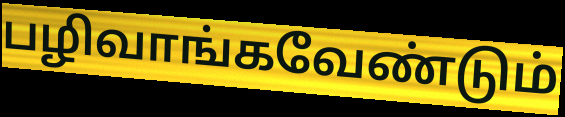
பழிவாங்கவேண்டும்